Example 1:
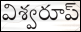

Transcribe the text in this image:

విశ్వరూప్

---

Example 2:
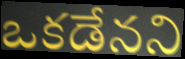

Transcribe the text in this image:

ఒకడేనని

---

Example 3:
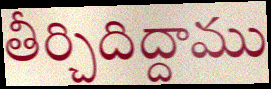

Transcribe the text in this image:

తీర్చిదిద్దాము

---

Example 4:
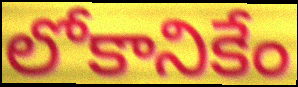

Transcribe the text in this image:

లోకానికేం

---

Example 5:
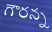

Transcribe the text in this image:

గౌరన్న